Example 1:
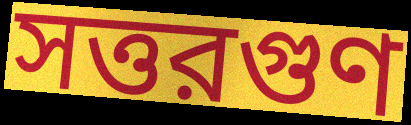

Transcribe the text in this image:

সত্তরগুণ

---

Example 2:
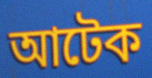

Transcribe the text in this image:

আটেক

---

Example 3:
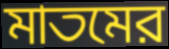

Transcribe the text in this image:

মাতমের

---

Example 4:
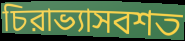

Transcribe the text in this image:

চিরাভ্যাসবশত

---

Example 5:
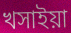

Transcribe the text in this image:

খসাইয়া